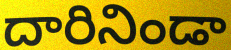
దారినిండా